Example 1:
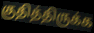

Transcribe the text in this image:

குதித்திருக்க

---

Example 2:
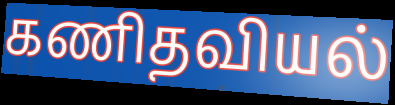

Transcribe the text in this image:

கணிதவியல்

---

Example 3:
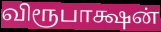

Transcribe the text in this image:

விரூபாக்ஷன்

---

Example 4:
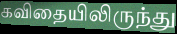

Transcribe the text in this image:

கவிதையிலிருந்து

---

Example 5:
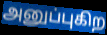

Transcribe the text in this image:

அனுப்புகிற